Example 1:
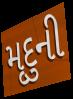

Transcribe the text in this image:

મૃદુની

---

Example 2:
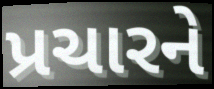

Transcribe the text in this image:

પ્રચારને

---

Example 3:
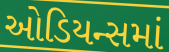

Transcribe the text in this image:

ઓડિયન્સમાં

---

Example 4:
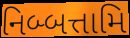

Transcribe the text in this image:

નિબ્બત્તામિ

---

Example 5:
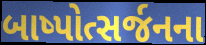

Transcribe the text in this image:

બાષ્પોત્સર્જનના